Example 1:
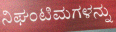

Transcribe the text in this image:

ನಿಘಂಟಿಮಗಳನ್ನು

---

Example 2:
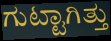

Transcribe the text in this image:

ಗುಟ್ಟಾಗಿತ್ತು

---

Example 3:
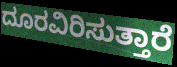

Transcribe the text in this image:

ದೂರವಿರಿಸುತ್ತಾರೆ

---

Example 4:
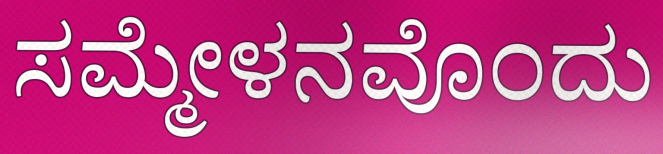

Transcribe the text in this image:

ಸಮ್ಮೇಳನವೊಂದು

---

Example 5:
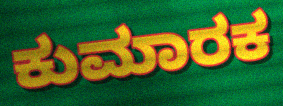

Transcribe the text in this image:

ಕುಮಾರಕ